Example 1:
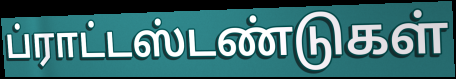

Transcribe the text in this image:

ப்ராட்டஸ்டண்டுகள்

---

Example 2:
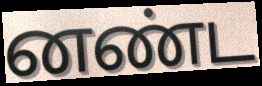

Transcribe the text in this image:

னண்ட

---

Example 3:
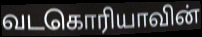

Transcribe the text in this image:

வடகொரியாவின்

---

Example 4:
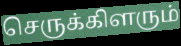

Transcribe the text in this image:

செருக்கிளரும்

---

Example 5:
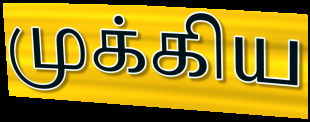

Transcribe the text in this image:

முக்கிய